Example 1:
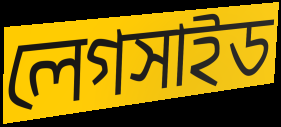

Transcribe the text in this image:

লেগসাইড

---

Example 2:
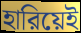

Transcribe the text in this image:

হারিয়েই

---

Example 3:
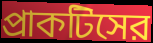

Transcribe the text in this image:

প্রাকটিসের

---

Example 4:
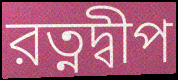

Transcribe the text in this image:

রত্নদ্বীপ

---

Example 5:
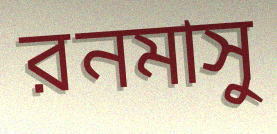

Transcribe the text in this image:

রনমাসু